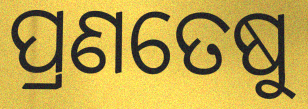
ପ୍ରଣତେଷୁ